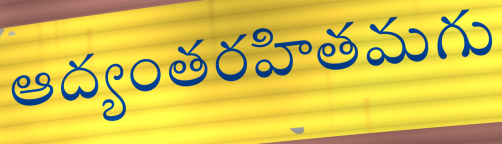
ఆద్యంతరహితమగు